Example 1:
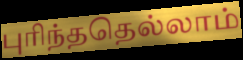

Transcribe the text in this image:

புரிந்ததெல்லாம்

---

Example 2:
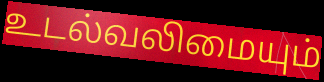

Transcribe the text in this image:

உடல்வலிமையும்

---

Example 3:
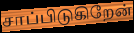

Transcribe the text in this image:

சாப்பிடுகிறேன்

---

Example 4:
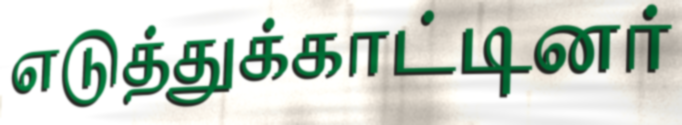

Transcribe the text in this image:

எடுத்துக்காட்டினர்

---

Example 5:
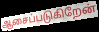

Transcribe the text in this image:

ஆசைப்படுகிறேன்